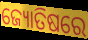
ଜ୍ୟୋତିଷରେ